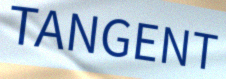
TANGENT